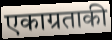
एकाग्रताकी